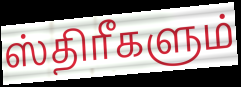
ஸ்திரீகளும்